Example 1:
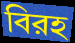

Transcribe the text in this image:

বিরহ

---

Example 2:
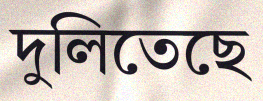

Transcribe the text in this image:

দুলিতেছে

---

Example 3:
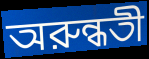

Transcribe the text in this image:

অরুন্ধতী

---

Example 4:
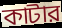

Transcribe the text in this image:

কাটার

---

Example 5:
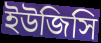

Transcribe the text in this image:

ইউজিসি